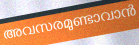
അവസരമുണ്ടാവാൻ